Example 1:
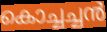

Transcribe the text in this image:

കൊച്ചച്ചൻ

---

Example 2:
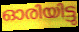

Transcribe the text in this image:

ഓരിയിട്ടു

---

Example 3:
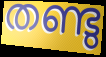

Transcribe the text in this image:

തണ്ടു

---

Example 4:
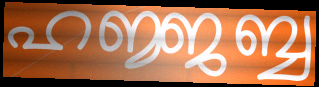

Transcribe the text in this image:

ഹജ്ജബ്ബ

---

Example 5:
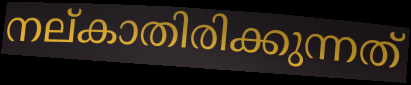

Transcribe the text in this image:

നല്കാതിരിക്കുന്നത്